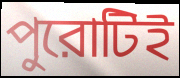
পুরোটিই